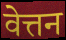
वेत्तन